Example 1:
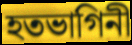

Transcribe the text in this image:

হতভাগিনী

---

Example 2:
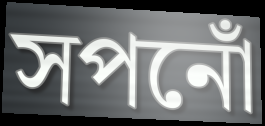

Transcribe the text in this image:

সপনোঁ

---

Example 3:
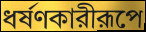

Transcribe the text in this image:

ধর্ষণকারীরূপে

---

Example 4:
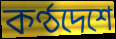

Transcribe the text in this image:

কণ্ঠদেশে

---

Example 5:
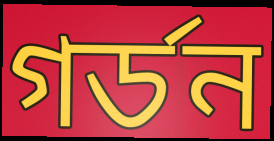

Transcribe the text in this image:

গর্ডন